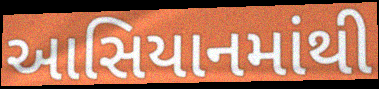
આસિયાનમાંથી